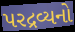
પરદ્રવ્યનો